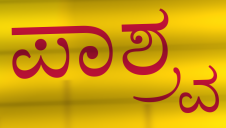
ಪಾಶ್ರ್ವ